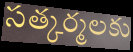
సత్కర్మలకు